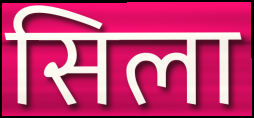
सिला